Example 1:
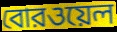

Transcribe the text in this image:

বোরওয়েল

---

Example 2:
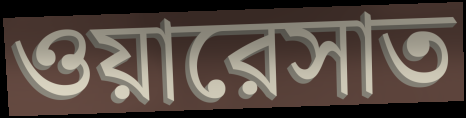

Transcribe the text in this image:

ওয়ারেসাত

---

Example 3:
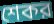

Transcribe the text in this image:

শেকর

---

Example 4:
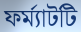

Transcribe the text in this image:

ফর্ম্যাটটি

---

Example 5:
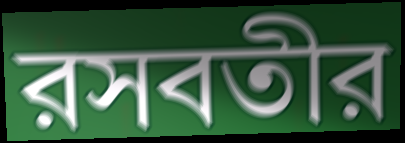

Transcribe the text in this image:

রসবতীর